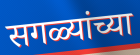
सगळ्यांच्या